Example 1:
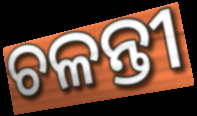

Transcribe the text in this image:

ଚଳନ୍ତୀ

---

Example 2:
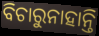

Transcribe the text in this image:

ବିଚାରୁନାହାନ୍ତି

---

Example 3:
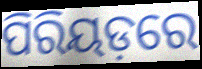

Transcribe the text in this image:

ପିରିୟଡ଼ରେ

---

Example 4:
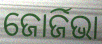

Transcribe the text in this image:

ଜୋର୍ଜିଭା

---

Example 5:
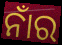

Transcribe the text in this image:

ନାଁର